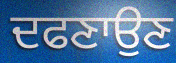
ਦਫਣਾਉਣ